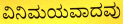
ವಿನಿಮಯವಾದವು